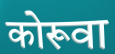
कोरूवा